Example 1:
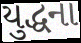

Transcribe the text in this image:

યુદ્ધના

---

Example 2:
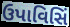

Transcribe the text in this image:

ઉપાવિસિં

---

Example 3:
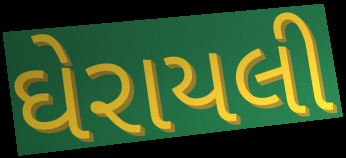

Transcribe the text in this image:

ઘેરાયલી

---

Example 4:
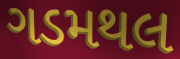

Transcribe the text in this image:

ગડમથલ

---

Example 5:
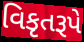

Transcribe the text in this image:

વિકૃતરૂપે